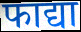
फाद्या